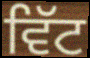
ਵਿੱਟ